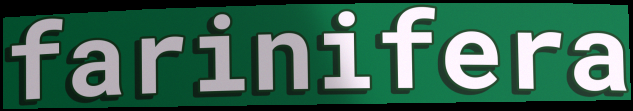
farinifera